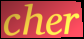
cher